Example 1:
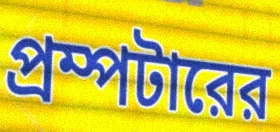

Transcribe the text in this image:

প্রম্পটারের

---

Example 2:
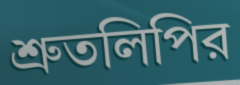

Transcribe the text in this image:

শ্রুতলিপির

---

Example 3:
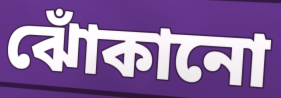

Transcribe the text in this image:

ঝোঁকানো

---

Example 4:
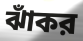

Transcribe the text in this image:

ঝাঁকর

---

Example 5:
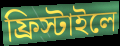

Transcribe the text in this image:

ফ্রিস্টাইলে